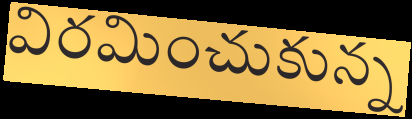
విరమించుకున్న